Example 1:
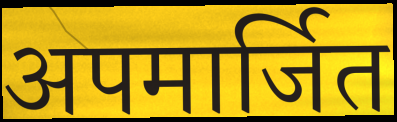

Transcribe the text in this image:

अपमार्जित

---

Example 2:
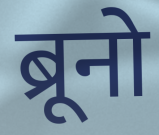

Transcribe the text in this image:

ब्रूनो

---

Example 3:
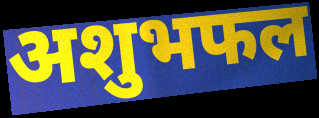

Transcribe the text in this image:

अशुभफल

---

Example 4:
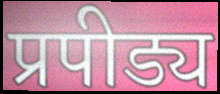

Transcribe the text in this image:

प्रपीड्य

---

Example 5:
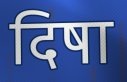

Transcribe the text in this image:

दिषा